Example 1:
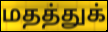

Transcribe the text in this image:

மதத்துக்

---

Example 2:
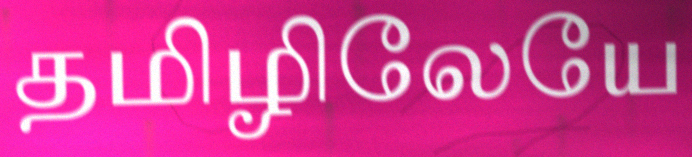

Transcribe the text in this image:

தமிழிலேயே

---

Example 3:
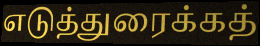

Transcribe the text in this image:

எடுத்துரைக்கத்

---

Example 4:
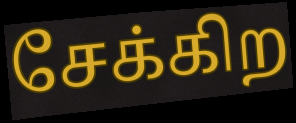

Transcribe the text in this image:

சேக்கிற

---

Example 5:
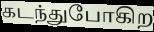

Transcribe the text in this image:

கடந்துபோகிற